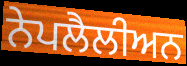
ਨੇਪਲੈਲੀਅਨ